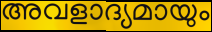
അവളാദ്യമായും